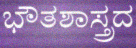
ಭೌತಶಾಸ್ತ್ರದ